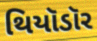
થિયૉડૉર